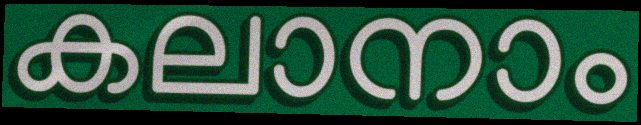
കലാനാം